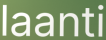
laanti